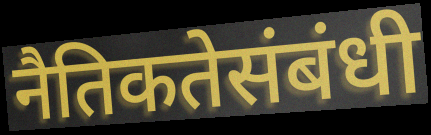
नैतिकतेसंबंधी